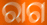
ରାଗ